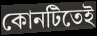
কোনটিতেই